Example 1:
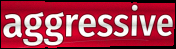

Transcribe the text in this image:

aggressive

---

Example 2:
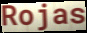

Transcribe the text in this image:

Rojas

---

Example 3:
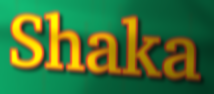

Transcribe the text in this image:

Shaka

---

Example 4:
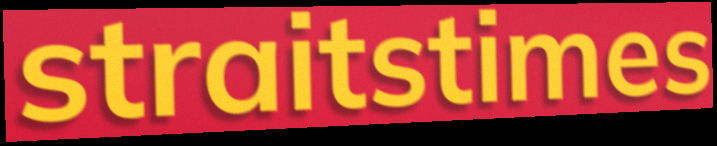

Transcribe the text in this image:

straitstimes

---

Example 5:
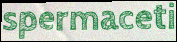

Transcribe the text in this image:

spermaceti